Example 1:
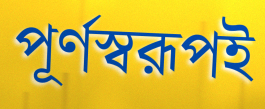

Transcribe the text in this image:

পূর্ণস্বরূপই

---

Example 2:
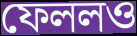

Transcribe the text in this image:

ফেললও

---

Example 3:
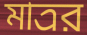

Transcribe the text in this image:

মাত্রর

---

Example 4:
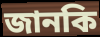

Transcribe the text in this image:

জানকি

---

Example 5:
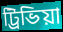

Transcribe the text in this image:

ট্রিভিয়া